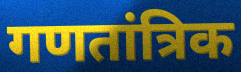
गणतांत्रिक